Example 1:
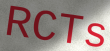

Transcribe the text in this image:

RCTs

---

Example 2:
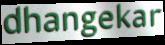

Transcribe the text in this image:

dhangekar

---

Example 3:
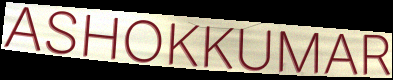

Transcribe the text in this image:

ASHOKKUMAR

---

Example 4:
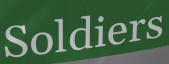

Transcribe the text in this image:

Soldiers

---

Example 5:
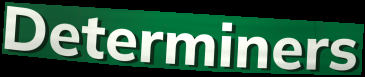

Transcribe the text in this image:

Determiners